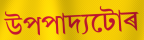
উপপাদ্যটোৰ